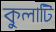
কুলাটি